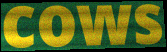
cows